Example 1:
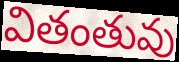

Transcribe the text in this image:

వితంతువు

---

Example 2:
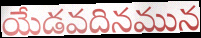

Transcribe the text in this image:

యేడవదినమున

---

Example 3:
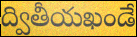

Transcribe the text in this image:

ద్వితీయఖండే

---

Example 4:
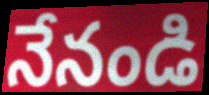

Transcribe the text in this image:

నేనండి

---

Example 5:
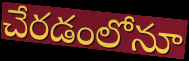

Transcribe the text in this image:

చేరడంలోనూ